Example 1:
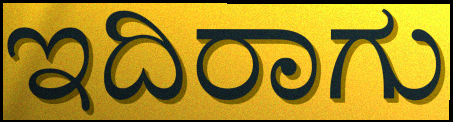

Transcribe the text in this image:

ಇದಿರಾಗು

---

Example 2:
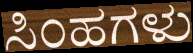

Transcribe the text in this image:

ಸಿಂಹಗಳು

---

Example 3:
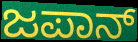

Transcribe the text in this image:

ಜಪಾನ್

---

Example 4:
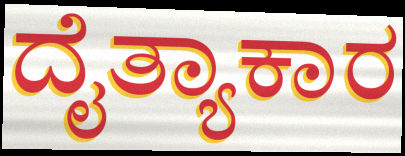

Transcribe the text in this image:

ದೈತ್ಯಾಕಾರ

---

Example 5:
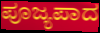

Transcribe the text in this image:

ಪೂಜ್ಯಪಾದ